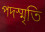
পদস্মৃতি